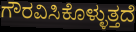
ಗೌರವಿಸಿಕೊಳ್ಳುತ್ತದೆ